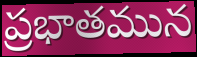
ప్రభాతమున